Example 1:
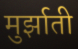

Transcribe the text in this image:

मुर्झाती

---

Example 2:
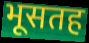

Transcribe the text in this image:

भूसतह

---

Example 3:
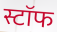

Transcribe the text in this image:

स्टॉफ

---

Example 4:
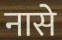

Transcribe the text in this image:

नासे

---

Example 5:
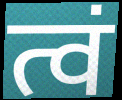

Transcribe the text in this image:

त्वं